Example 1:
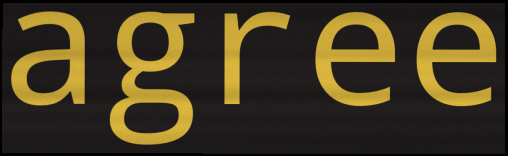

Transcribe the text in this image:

agree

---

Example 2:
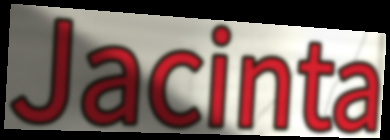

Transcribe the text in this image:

Jacinta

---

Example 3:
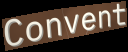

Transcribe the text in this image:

Convent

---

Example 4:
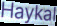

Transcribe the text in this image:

Haykal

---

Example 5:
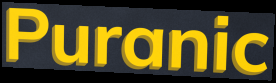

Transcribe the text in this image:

Puranic